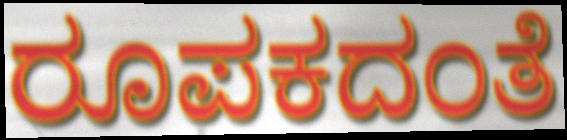
ರೂಪಕದಂತೆ